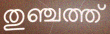
തുഞ്ചത്ത്